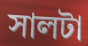
সালটা